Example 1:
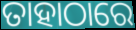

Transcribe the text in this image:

ତାହାଠାରେ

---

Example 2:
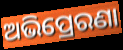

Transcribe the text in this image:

ଅଭିପ୍ରେରଣା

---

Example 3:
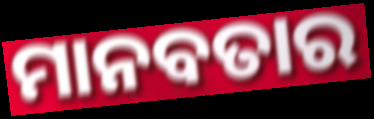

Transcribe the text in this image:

ମାନବତାର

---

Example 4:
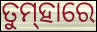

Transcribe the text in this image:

ତୁମ୍‌ହାରେ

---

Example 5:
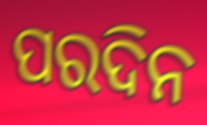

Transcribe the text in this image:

ପରଦିନ